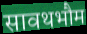
सावथभौम